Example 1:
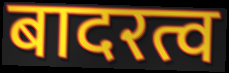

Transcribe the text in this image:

बादरत्व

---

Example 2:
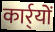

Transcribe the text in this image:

कार्र्यों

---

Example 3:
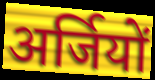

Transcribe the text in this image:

अर्जियों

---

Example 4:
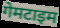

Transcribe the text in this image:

गेमटाइम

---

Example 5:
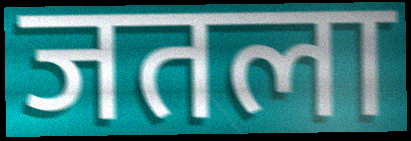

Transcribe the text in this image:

जतला